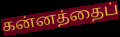
கன்னத்தைப்